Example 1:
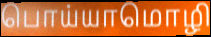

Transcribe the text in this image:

பொய்யாமொழி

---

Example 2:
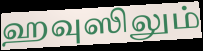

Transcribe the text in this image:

ஹவுஸிலும்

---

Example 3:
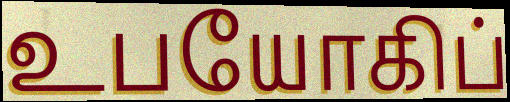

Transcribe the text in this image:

உபயோகிப்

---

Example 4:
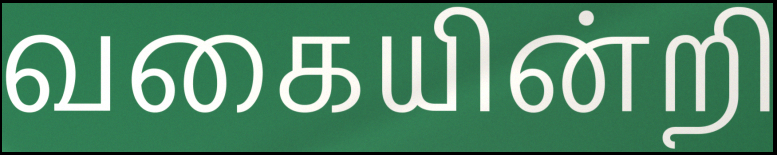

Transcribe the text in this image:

வகையின்றி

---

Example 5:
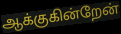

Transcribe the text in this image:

ஆக்குகின்றேன்